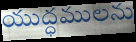
యుద్ధములను